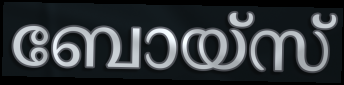
ബോയ്സ്